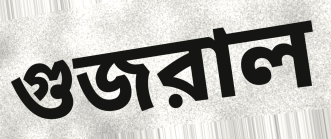
গুজরাল